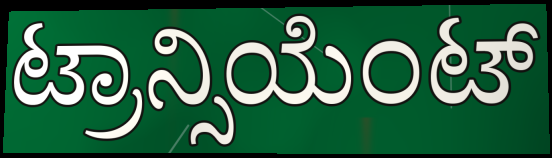
ಟ್ರಾನ್ಸಿಯೆಂಟ್